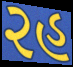
રહ